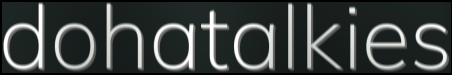
dohatalkies